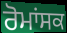
ਰੋਮਾਂਸਕ